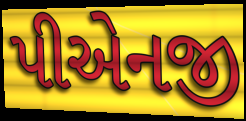
પીએનજી